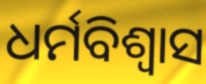
ଧର୍ମବିଶ୍ବାସ